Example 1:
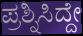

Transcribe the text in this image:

ಪ್ರಶ್ನಿಸಿದ್ದೇ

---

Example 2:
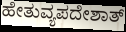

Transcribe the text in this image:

ಹೇತುವ್ಯಪದೇಶಾತ್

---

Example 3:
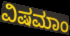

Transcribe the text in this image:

ವಿಷಮಾಂ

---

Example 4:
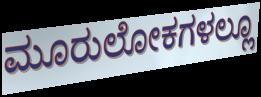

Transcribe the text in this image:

ಮೂರುಲೋಕಗಳಲ್ಲೂ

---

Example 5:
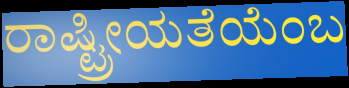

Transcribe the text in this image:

ರಾಷ್ಟ್ರೀಯತೆಯೆಂಬ